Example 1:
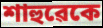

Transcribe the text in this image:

শাহুৱেকে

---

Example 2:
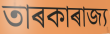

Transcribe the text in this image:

তাৰকাৰাজ্য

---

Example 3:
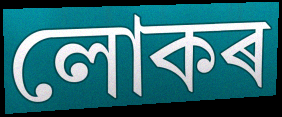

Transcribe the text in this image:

লোকৰ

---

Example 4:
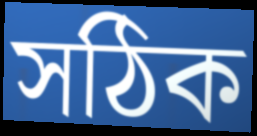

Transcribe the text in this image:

সঠিক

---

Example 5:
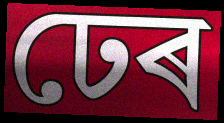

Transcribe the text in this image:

ঢেৰ